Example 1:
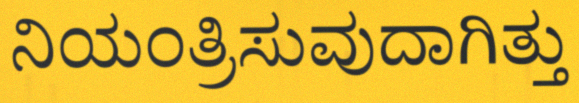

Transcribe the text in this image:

ನಿಯಂತ್ರಿಸುವುದಾಗಿತ್ತು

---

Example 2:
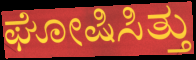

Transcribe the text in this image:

ಘೋಷಿಸಿತ್ತು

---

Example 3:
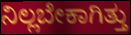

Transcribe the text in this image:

ನಿಲ್ಲಬೇಕಾಗಿತ್ತು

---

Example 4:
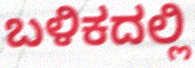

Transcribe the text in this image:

ಬಳಿಕದಲ್ಲಿ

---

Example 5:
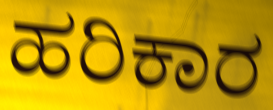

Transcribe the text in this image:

ಹರಿಕಾರ